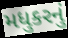
મધુકરનું